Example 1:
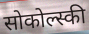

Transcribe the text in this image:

सोकोल्स्की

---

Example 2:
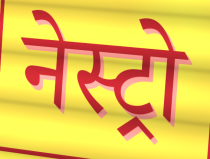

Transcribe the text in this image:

नेस्ट्रो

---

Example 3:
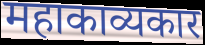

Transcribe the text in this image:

महाकाव्यकार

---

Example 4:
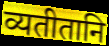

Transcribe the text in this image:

व्यतीतानि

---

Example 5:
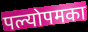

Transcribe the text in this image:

पल्योपमका